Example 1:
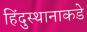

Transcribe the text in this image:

हिंदुस्थानाकडे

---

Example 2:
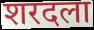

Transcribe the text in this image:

शरदला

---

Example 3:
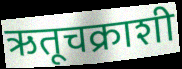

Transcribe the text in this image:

ऋतूचक्राशी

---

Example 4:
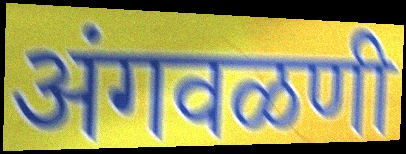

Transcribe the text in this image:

अंगवळणी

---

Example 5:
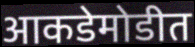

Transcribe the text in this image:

आकडेमोडीत